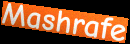
Mashrafe